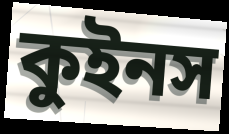
কুইনস